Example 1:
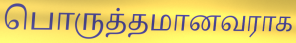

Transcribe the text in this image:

பொருத்தமானவராக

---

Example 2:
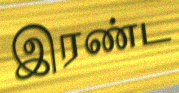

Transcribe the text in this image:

இரண்ட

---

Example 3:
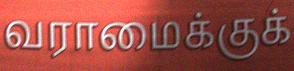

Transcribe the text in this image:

வராமைக்குக்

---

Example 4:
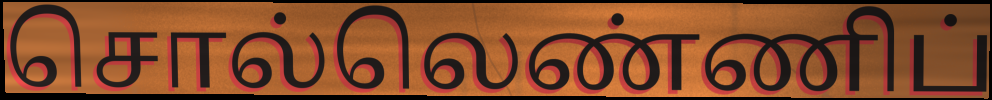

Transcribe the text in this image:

சொல்லெண்ணிப்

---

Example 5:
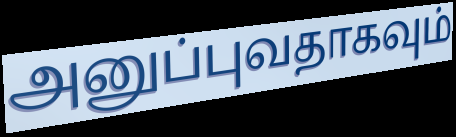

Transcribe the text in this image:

அனுப்புவதாகவும்